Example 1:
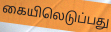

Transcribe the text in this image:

கையிலெடுப்பது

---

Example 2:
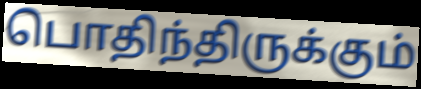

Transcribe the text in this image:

பொதிந்திருக்கும்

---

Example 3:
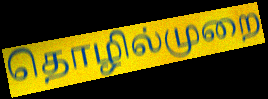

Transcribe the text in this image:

தொழில்முறை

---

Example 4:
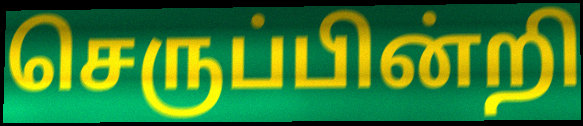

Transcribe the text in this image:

செருப்பின்றி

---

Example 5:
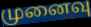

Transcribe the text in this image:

முனைவு